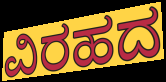
ವಿರಹದ